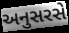
અનુસરસે